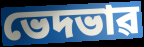
ভেদভাৱ